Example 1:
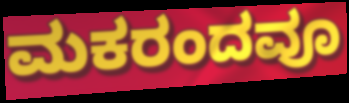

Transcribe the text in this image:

ಮಕರಂದವೂ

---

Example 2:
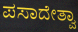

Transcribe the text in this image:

ಪಸಾದೇತ್ವಾ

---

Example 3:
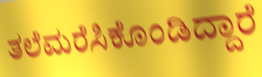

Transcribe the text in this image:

ತಲೆಮರೆಸಿಕೊಂಡಿದ್ದಾರೆ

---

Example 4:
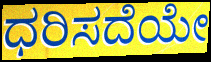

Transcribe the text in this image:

ಧರಿಸದೆಯೇ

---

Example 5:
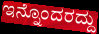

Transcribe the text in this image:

ಇನ್ನೊಂದರದ್ದು